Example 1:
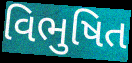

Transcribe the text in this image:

વિભુષિત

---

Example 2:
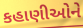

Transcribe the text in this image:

કહાણીઓને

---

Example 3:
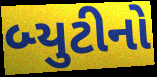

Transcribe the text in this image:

બ્યુટીનો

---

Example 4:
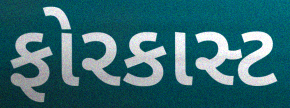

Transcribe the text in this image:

ફોરકાસ્ટ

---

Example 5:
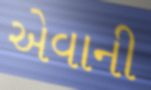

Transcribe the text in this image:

એવાની